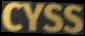
CYSS